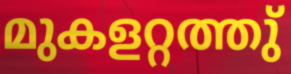
മുകളറ്റത്തു്